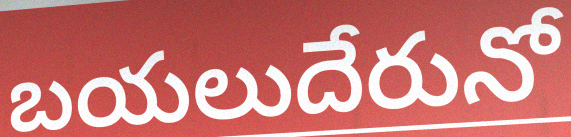
బయలుదేరునో